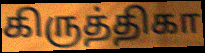
கிருத்திகா